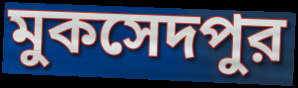
মুকসেদপুর